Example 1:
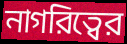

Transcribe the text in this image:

নাগরিত্বের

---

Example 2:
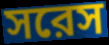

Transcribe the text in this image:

সরেস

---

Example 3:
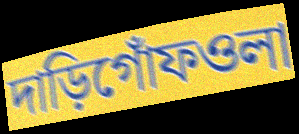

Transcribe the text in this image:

দাড়িগোঁফওলা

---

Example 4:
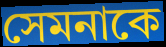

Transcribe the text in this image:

সেমনাকে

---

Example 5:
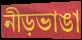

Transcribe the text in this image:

নীড়ভাঙা